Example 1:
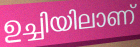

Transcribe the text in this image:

ഉച്ചിയിലാണ്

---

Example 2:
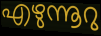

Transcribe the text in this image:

എഴുന്നൂറു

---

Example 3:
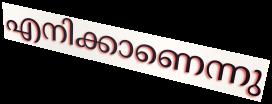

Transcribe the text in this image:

എനിക്കാണെന്നു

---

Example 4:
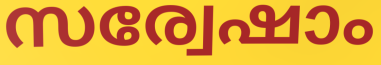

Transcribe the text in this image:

സര്വേഷാം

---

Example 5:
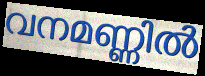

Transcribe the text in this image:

വനമണ്ണിൽ